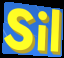
Sil